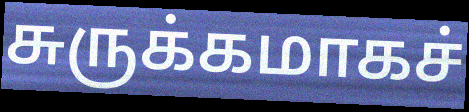
சுருக்கமாகச்